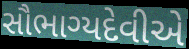
સૌભાગ્યદેવીએ